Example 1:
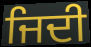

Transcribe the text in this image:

ਜਿਦੀ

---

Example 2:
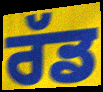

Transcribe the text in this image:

ਰੱਡ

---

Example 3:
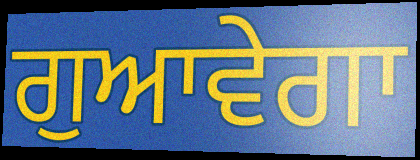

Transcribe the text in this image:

ਗੁਆਵੇਗਾ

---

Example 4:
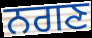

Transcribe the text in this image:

ਨਗਣ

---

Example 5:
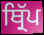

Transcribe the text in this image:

ਥ੍ਰਿੱਪ